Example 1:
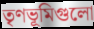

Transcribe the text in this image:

তৃণভূমিগুলো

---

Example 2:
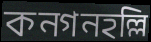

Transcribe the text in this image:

কনগনহল্লি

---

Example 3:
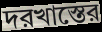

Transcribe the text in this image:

দরখাস্তের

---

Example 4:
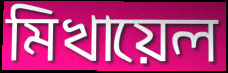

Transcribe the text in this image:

মিখায়েল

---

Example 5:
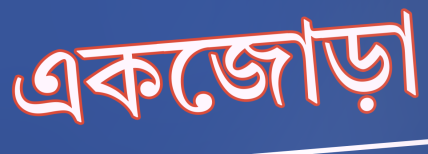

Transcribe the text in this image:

একজোড়া